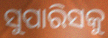
ସୁପାରିସକୁ